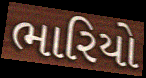
ભારિયો